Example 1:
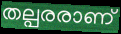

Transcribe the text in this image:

തല്പരരാണ്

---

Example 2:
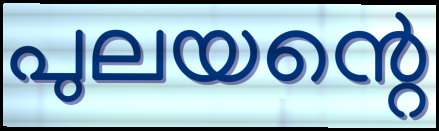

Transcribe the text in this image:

പുലയന്റെ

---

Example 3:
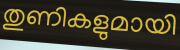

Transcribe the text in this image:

തുണികളുമായി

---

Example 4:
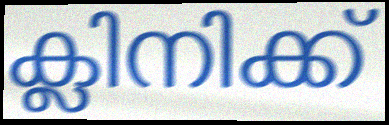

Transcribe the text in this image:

ക്ലിനിക്ക്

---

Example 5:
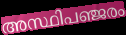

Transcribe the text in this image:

അസ്ഥിപഞ്ജരം